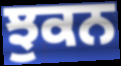
ਝੁਕਨ